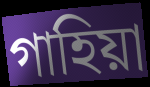
গাহিয়া